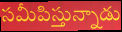
సమీపిస్తున్నాడు